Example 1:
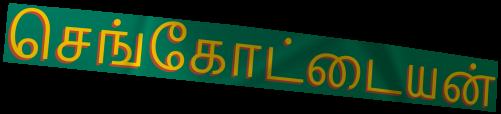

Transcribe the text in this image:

செங்கோட்டையன்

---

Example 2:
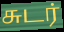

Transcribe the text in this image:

சுடர்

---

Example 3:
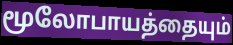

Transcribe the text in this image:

மூலோபாயத்தையும்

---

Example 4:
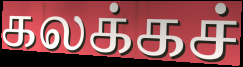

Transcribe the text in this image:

கலக்கச்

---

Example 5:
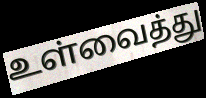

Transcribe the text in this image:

உள்வைத்து